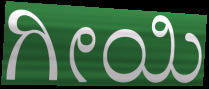
ಗೀಯಿ